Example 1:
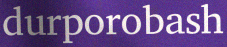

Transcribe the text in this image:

durporobash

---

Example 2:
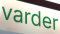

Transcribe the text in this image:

varder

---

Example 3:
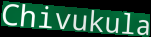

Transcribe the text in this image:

Chivukula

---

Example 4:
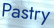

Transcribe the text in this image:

Pastry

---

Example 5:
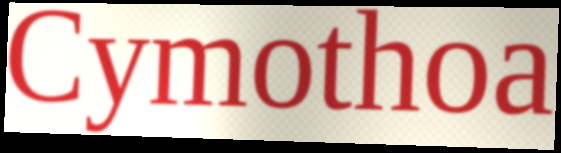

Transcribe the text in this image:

Cymothoa